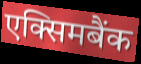
एक्सिमबैंक